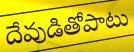
దేవుడితోపాటు